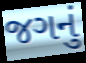
જગનું